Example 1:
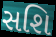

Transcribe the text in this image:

સશિ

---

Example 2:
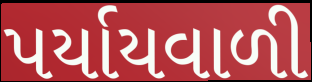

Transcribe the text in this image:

પર્યાયવાળી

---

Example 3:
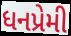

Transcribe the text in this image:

ધનપ્રેમી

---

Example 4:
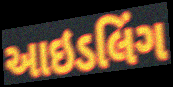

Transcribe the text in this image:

આઇડલિંગ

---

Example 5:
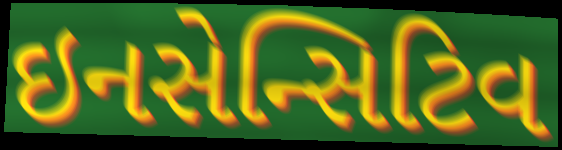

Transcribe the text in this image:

ઇનસેન્સિટિવ